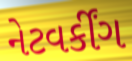
નેટવર્કીંગ